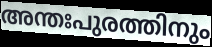
അന്തഃപുരത്തിനും